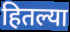
हितल्या